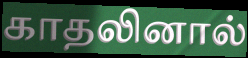
காதலினால்